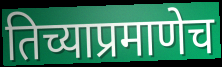
तिच्याप्रमाणेच